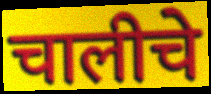
चालीचे